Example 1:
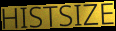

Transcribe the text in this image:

HISTSIZE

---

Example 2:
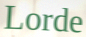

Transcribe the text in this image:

Lorde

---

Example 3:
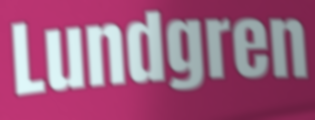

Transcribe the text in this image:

Lundgren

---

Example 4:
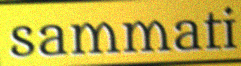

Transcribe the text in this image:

sammati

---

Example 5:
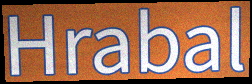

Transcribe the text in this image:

Hrabal